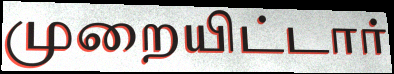
முறையிட்டார்